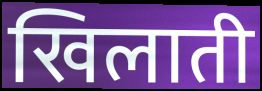
खिलाती